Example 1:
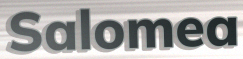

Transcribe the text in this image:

Salomea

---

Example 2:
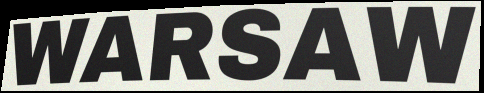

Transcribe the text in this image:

WARSAW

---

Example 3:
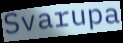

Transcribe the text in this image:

Svarupa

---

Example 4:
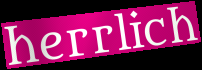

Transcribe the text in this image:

herrlich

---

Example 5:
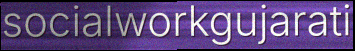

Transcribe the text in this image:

socialworkgujarati